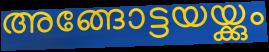
അങ്ങോട്ടയയ്ക്കും